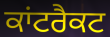
ਕਾਂਟਰੈਕਟ